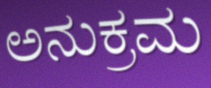
ಅನುಕ್ರಮ